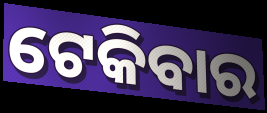
ଟେକିବାର